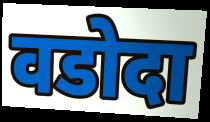
वडोदा